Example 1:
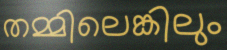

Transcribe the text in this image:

തമ്മിലെങ്കിലും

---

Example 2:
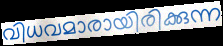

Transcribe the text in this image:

വിധവമാരായിരിക്കുന്ന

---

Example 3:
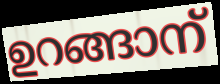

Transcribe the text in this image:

ഉറങ്ങാന്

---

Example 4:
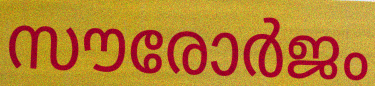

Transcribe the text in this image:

സൗരോർജം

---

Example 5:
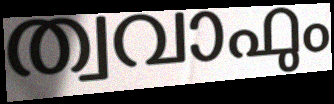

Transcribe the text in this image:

ത്വവാഫും